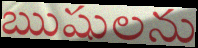
ఋషులను